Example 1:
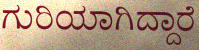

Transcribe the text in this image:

ಗುರಿಯಾಗಿದ್ದಾರೆ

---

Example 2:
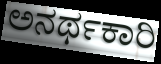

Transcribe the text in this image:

ಅನರ್ಥಕಾರಿ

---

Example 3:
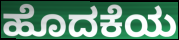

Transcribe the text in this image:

ಹೊದಕೆಯ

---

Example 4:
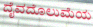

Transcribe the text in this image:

ದೈವದೊಲುಮೆಯ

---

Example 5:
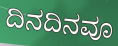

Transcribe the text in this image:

ದಿನದಿನವೂ